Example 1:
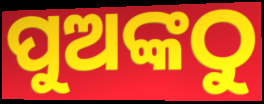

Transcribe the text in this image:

ପୁଅଙ୍କଠୁ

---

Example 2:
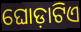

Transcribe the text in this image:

ଘୋଡ଼ାଟିଏ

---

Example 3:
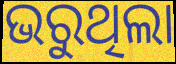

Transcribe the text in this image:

ଭରୁଥିଲା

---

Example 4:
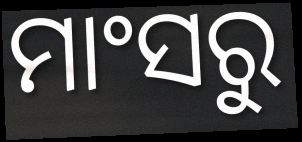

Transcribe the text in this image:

ମାଂସରୁ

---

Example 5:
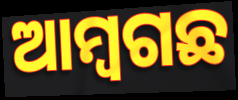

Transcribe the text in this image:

ଆମ୍ବଗଛ